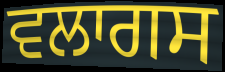
ਵਲਾਗਸ